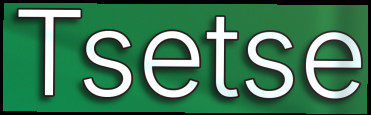
Tsetse